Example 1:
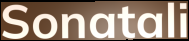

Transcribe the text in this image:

Sonatali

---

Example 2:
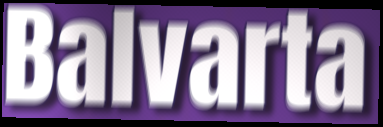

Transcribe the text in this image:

Balvarta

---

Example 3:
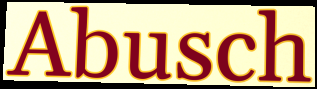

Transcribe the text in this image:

Abusch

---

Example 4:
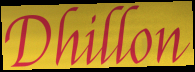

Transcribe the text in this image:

Dhillon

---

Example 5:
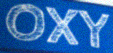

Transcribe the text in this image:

OXY